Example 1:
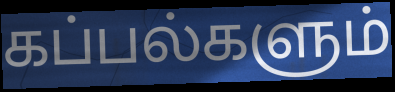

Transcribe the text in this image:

கப்பல்களும்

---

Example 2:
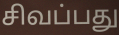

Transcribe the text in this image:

சிவப்பது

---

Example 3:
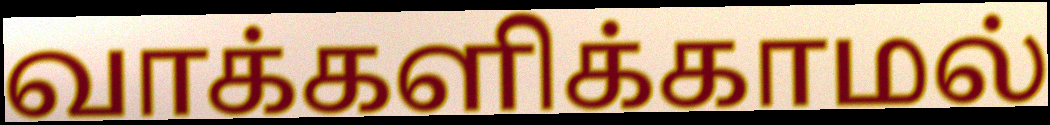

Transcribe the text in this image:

வாக்களிக்காமல்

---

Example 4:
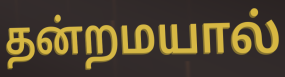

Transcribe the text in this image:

தன்றமயால்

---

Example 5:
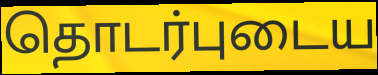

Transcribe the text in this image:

தொடர்புடைய